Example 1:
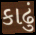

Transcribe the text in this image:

કાઢું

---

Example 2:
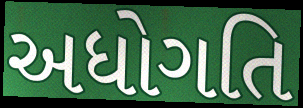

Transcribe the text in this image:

અધોગતિ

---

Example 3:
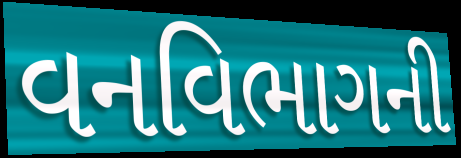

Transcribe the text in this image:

વનવિભાગની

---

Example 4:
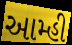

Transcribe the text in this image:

આમ્હી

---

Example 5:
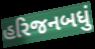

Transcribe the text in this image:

હરિજનબધું